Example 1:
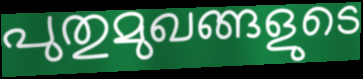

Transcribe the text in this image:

പുതുമുഖങ്ങളുടെ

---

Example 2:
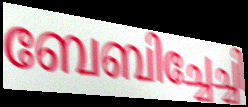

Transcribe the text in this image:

ബേബിച്ചേച്ചി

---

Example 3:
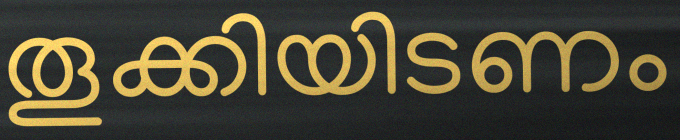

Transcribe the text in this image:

തൂക്കിയിടണം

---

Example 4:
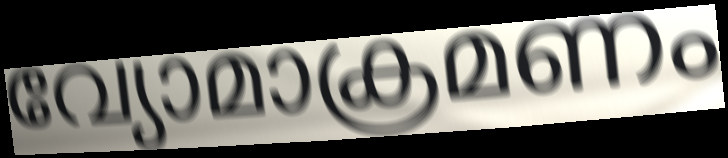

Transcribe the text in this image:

വ്യോമാക്രമണം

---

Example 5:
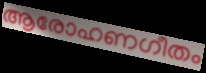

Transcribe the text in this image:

ആരോഹണഗീതം